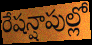
రేషన్షాపుల్లో